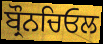
ਬ੍ਰੌਨਚਿਓਲ